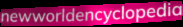
newworldencyclopedia